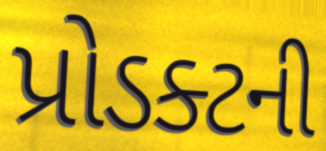
પ્રોડક્ટની